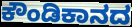
ಕೌಂಡಿಕಾನದ